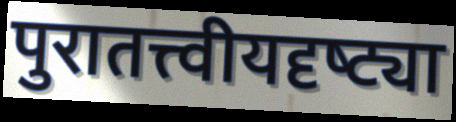
पुरातत्त्वीयदृष्ट्या